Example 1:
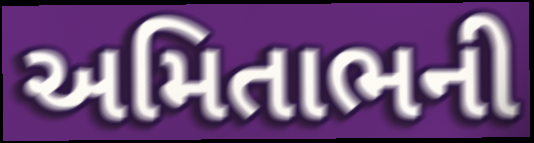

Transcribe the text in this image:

અમિતાભની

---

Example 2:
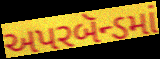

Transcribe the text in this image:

અપરબૅન્ડમાં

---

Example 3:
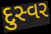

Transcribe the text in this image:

દુસ્વર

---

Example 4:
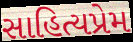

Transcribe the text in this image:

સાહિત્યપ્રેમ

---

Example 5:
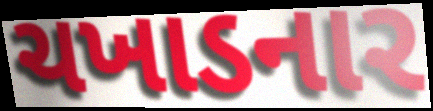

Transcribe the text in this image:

ચખાડનાર